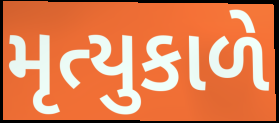
મૃત્યુકાળે